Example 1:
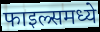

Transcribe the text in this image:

फाइल्समध्ये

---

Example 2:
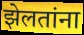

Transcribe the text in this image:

झेलतांना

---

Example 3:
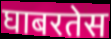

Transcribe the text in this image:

घाबरतेस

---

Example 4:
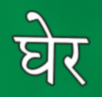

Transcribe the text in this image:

घेर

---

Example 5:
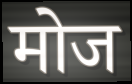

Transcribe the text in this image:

मोज